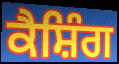
ਕੈਸ਼ਿੰਗ